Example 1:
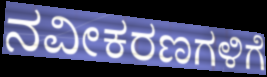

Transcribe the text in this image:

ನವೀಕರಣಗಳಿಗೆ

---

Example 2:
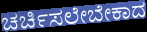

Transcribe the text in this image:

ಚರ್ಚಿಸಲೇಬೇಕಾದ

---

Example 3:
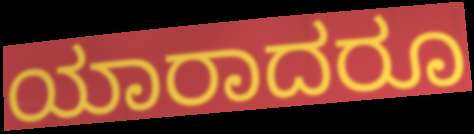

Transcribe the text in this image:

ಯಾರಾದರೂ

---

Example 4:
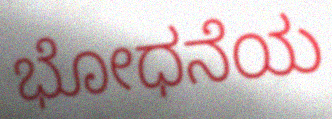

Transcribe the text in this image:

ಭೋಧನೆಯ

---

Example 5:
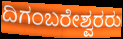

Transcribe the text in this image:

ದಿಗಂಬರೇಶ್ವರರು